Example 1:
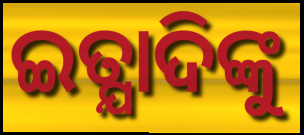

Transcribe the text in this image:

ଇତ୍ଯାଦିଙ୍କୁ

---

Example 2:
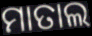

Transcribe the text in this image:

ମାତାଲ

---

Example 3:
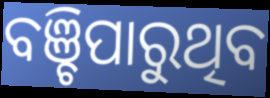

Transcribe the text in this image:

ବଞ୍ଚିପାରୁଥିବ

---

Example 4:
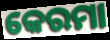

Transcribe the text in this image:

କେରମା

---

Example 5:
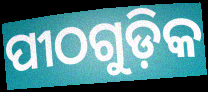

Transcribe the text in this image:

ପୀଠଗୁଡ଼ିକ